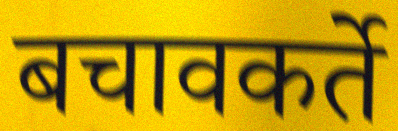
बचावकर्ते